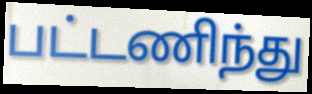
பட்டணிந்து